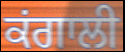
ਕਂਗਾਲੀ